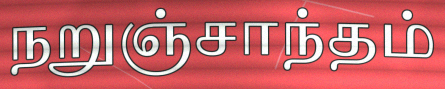
நறுஞ்சாந்தம்